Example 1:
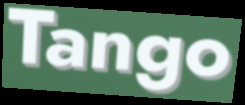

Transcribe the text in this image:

Tango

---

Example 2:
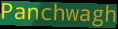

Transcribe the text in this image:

Panchwagh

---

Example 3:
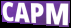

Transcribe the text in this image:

CAPM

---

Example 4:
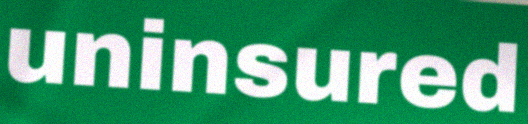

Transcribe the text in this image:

uninsured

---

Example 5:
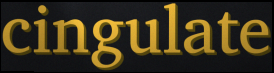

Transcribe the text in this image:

cingulate